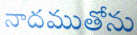
నాదముతోను